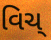
વિચ્